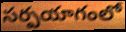
సర్పయాగంలో